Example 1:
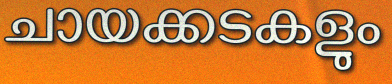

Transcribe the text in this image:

ചായക്കടകളും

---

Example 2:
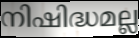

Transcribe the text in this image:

നിഷിദ്ധമല്ല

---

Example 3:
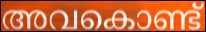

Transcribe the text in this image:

അവകൊണ്ട്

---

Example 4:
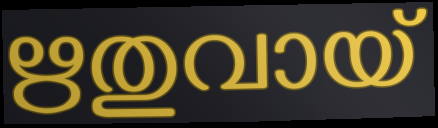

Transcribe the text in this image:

ഋതുവായ്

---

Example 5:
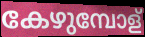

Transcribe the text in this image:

കേഴുമ്പോള്